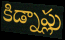
కిడ్నాప్లు